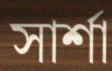
সার্শা